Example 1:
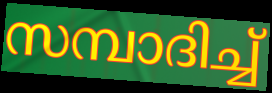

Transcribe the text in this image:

സമ്പാദിച്ച്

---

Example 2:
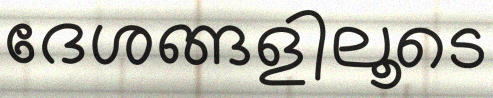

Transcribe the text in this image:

ദേശങ്ങളിലൂടെ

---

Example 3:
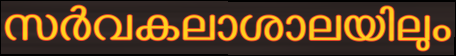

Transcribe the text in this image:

സർവകലാശാലയിലും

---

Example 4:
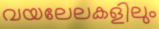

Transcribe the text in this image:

വയലേലകളിലും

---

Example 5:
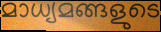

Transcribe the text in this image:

മാധ്യമങ്ങളുടെ